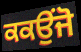
ਕਕਉਂਜੋ